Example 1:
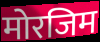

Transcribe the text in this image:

मोरजिम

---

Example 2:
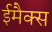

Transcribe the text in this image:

ईमैक्स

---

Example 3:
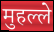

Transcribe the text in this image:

मुहल्ले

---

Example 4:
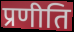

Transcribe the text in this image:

प्रणीति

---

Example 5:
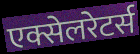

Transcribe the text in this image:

एक्सेलरेटर्स